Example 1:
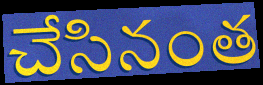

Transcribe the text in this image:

చేసినంత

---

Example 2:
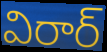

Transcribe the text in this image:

విరార్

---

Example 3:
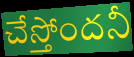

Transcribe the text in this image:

చేస్తోందనీ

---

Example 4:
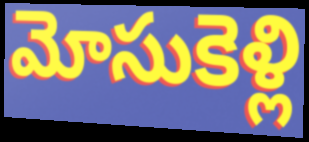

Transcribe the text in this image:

మోసుకెళ్లి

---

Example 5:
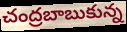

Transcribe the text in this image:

చంద్రబాబుకున్న